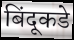
बिंदूकडे